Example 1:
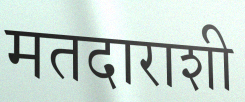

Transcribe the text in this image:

मतदाराशी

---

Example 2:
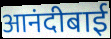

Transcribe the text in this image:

आनंदीबाई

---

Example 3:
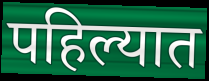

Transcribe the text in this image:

पहिल्यात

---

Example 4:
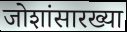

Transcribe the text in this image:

जोशांसारख्या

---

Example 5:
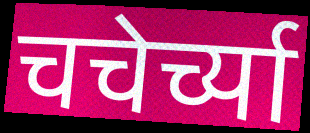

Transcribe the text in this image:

चचेर्च्या